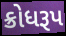
ક્રોધરૂપ